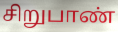
சிறுபாண்